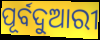
ପୂର୍ବଦୁଆରୀ